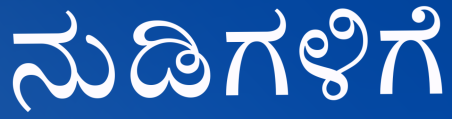
ನುಡಿಗಳಿಗೆ